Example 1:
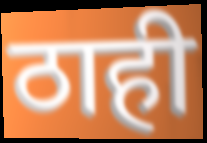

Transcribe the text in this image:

ठाही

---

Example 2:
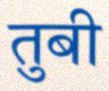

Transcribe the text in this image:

तुबी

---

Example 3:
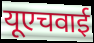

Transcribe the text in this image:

यूएचवाई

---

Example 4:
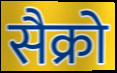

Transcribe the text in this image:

सैक्रो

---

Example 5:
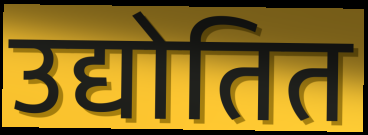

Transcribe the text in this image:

उद्योतित